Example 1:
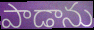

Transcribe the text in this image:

పాడాను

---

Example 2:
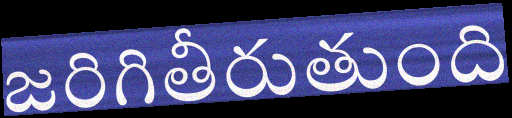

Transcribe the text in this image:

జరిగితీరుతుంది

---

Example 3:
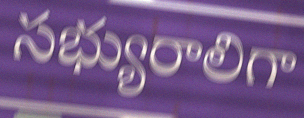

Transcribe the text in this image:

సభ్యురాలిగా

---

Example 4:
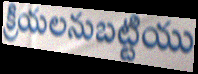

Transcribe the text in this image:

క్రియలనుబట్టియు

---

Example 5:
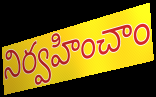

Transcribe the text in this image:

నిర్వహించాం